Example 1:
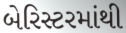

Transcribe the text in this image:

બેરિસ્ટરમાંથી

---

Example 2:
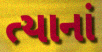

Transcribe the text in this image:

ત્યાનાં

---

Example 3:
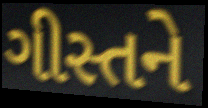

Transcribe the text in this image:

ગીસ્તને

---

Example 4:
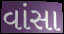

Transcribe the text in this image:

વાંસા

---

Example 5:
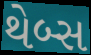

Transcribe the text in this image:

થેબ્સ